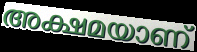
അക്ഷമയാണ്